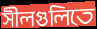
সীলগুলিতে